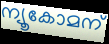
ന്യൂകോമന്